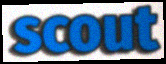
scout